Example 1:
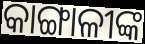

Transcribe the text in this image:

କାଙ୍ଗାଳୀଙ୍କ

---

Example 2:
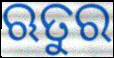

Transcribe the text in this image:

ଋତୁର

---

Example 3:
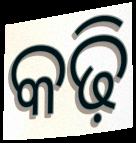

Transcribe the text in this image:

କଢ଼ି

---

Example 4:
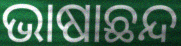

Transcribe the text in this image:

ଭାଷାଛନ୍ଦ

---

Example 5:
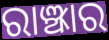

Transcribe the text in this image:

ରାଞ୍ଝାର